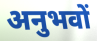
अनुभवों